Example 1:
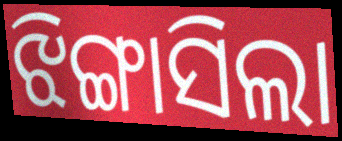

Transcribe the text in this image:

ଝିଙ୍ଗାସିଲା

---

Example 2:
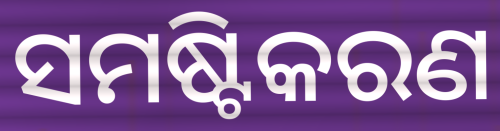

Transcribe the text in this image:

ସମଷ୍ଟିକରଣ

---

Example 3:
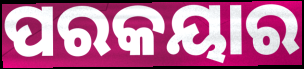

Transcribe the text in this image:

ପରକୟାର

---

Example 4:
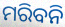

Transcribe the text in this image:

ମରିବନି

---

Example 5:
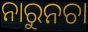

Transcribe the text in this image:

ନାରୁନଚା